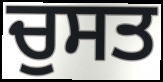
ਚੁਸਤ